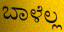
ಬಾಳೆಲ್ಲ